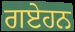
ਗਏਹਨ